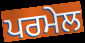
ਪਰਮੇਲ